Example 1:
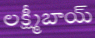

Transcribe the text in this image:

లక్ష్మీబాయ్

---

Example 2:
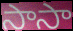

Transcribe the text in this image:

సాసా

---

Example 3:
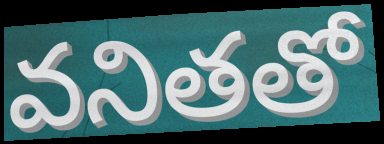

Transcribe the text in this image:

వనితతో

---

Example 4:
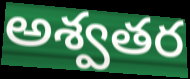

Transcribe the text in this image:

అశ్వతర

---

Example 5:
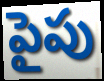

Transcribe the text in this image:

పైపు